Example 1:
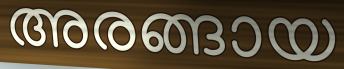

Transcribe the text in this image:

അരങ്ങായ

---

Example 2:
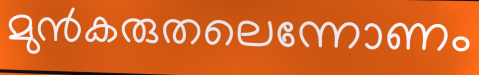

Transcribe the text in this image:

മുൻകരുതലെന്നോണം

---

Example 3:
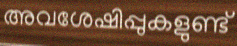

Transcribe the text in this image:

അവശേഷിപ്പുകളുണ്ട്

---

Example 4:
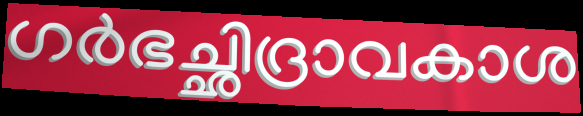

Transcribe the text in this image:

ഗർഭച്ഛിദ്രാവകാശ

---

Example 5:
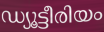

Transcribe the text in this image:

ഡ്യൂട്ടീരിയം